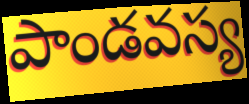
పాండవస్య